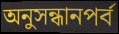
অনুসন্ধানপর্ব